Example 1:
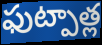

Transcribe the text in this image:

ఫుట్పాత్ల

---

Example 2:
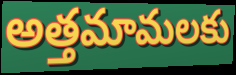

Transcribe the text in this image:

అత్తమామలకు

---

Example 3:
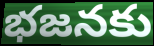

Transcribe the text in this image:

భజనకు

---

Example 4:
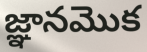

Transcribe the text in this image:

జ్ఞానమొక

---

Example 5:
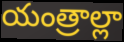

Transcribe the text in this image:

యంత్రాల్లా